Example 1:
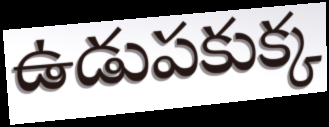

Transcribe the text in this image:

ఉడుపకుక్క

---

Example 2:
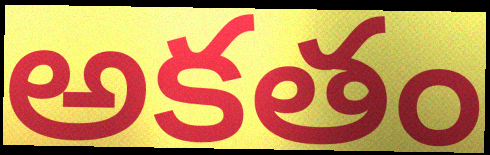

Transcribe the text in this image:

అకతం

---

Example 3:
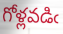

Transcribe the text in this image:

గోళ్లవడిఁ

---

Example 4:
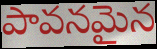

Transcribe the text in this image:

పావనమైన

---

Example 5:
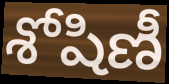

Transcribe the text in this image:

శోషిణీ